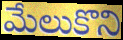
మేలుకొని